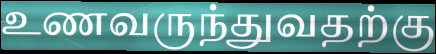
உணவருந்துவதற்கு